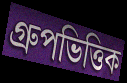
গ্রুপভিত্তিক